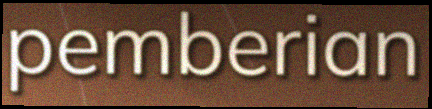
pemberian